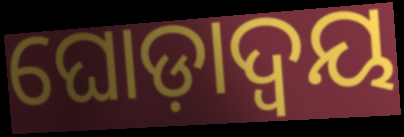
ଘୋଡ଼ାଦ୍ୱୟ